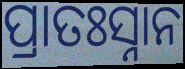
ପ୍ରାତଃସ୍ନାନ